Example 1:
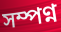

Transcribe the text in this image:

সম্পণ্ন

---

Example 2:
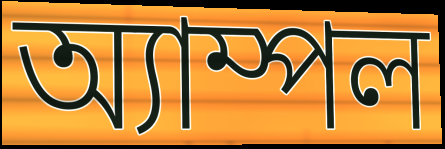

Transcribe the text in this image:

অ্যাম্পল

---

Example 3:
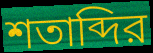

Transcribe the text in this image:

শতাব্দির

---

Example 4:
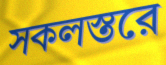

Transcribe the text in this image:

সকলস্তরে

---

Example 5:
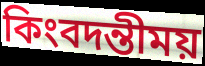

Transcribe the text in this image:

কিংবদন্তীময়